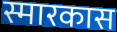
स्मारकास